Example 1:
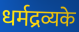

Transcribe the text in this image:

धर्मद्रव्यके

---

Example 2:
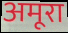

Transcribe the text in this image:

अमूरा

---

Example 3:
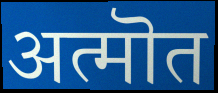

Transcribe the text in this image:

अत्मॊत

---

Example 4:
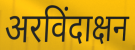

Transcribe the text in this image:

अरविंदाक्षन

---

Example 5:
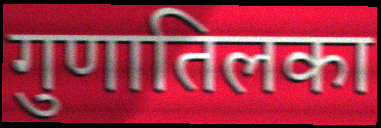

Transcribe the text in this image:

गुणातिलका